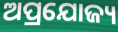
ଅପ୍ରଯୋଜ୍ୟ